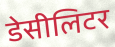
डेसीलिटर